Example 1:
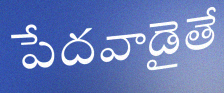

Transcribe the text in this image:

పేదవాడైతే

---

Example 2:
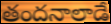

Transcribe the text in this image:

తందనాలాడే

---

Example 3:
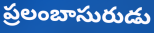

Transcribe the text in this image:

ప్రలంబాసురుడు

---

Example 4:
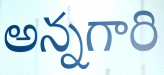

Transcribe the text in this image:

అన్నగారి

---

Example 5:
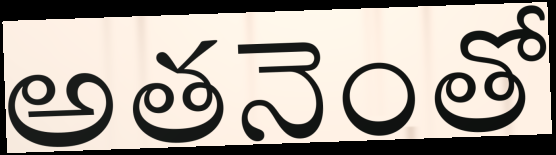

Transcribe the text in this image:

అతనెంతో